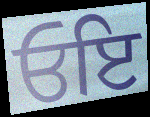
ਓਇ